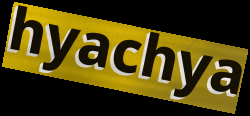
hyachya